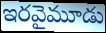
ఇరవైమూడు